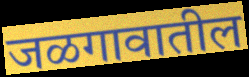
जळगावातील